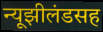
न्यूझीलंडसह